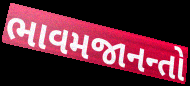
ભાવમજાનન્તો